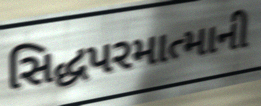
સિદ્ધપરમાત્માની